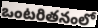
ఒంటరితనంలో